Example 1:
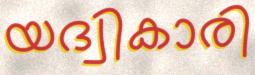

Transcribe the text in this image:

യദ്വികാരി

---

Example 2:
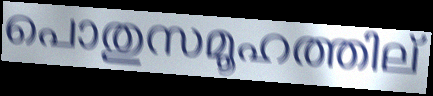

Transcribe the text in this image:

പൊതുസമൂഹത്തില്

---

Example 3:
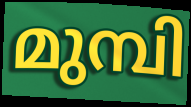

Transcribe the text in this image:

മുമ്പി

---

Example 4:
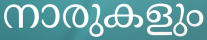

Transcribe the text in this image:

നാരുകളും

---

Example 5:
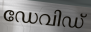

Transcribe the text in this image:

ഡേവിഡ്